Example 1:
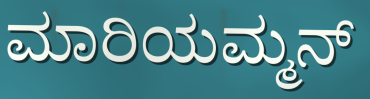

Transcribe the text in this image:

ಮಾರಿಯಮ್ಮನ್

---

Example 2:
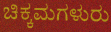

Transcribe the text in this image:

ಚಿಕ್ಕಮಗಳುರು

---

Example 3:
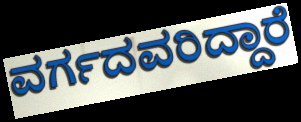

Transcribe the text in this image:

ವರ್ಗದವರಿದ್ದಾರೆ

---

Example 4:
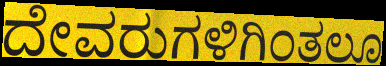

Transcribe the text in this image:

ದೇವರುಗಳಿಗಿಂತಲೂ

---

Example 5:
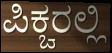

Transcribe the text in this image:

ಪಿಕ್ಚರಲ್ಲಿ